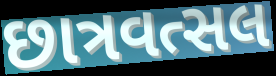
છાત્રવત્સલ